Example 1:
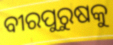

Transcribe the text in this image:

ବୀରପୁରୁଷକୁ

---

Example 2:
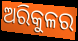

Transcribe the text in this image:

ଅରିକୁଳର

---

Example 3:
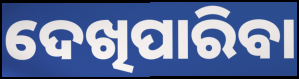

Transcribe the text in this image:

ଦେଖିପାରିବା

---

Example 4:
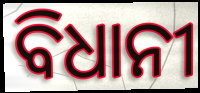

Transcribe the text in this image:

ବିଧାନୀ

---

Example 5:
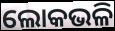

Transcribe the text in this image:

ଲୋକଭଳି